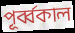
পূর্ব্বকাল